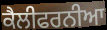
ਕੈਲੀਫਰਨੀਆ